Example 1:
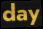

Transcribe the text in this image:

day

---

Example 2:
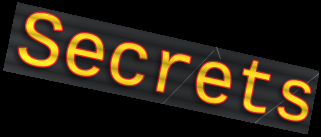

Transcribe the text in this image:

Secrets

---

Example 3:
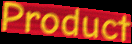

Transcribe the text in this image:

Product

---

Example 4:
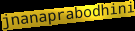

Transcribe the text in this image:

jnanaprabodhini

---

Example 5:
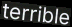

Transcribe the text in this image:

terrible